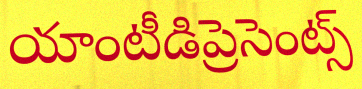
యాంటీడిప్రెసెంట్స్